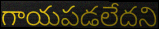
గాయపడలేదని